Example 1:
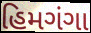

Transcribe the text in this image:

હિમગંગા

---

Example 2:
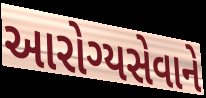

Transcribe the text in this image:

આરોગ્યસેવાને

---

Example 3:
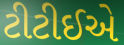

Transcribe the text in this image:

ટીટીઈએ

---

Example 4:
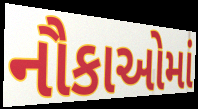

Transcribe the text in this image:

નૌકાઓમાં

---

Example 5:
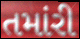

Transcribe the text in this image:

તમાંરી